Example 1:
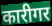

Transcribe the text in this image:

कारीगर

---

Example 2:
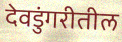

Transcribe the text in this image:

देवडुंगरीतील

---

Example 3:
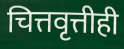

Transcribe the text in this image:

चित्तवृत्तीही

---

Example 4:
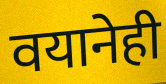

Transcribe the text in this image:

वयानेही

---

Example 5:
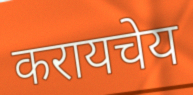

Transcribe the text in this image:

करायचेय